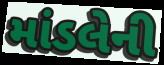
માંડલેની